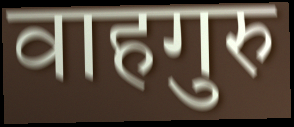
वाहगुरु